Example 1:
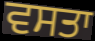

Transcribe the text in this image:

ਵਸਤਾ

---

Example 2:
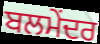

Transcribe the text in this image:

ਬਲਮੇਂਦਰ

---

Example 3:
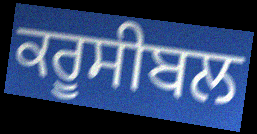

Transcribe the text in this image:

ਕਰੂਸੀਬਲ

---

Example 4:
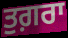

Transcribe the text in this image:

ਤੁਗ਼ਰਾ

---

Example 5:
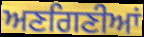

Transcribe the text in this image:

ਅਣਗਿਣੀਆਂ